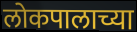
लोकपालाच्या